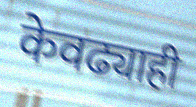
केवढ्याही